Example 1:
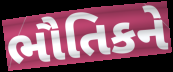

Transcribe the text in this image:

ભૌતિકને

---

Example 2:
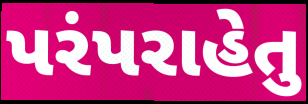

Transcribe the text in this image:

પરંપરાહેતુ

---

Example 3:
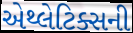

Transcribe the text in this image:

એથ્લેટિક્સની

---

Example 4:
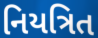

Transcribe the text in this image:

નિયત્રિત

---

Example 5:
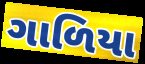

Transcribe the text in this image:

ગાળિયા